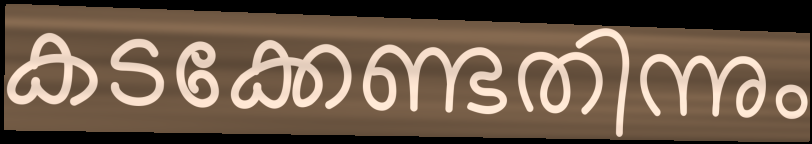
കടക്കേണ്ടതിന്നും